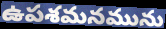
ఉపశమనమును